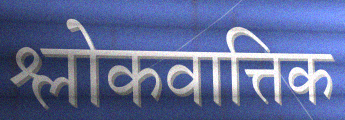
श्लोकवात्तिक